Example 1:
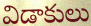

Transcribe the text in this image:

విడాకులు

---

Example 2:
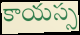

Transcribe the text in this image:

కాయస్స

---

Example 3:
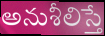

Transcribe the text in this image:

అనుశీలిస్తే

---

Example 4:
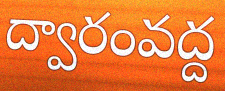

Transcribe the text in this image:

ద్వారంవద్ద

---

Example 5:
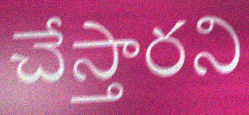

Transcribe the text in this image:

చేస్తారని